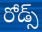
రోడ్స్